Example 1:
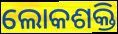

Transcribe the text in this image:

ଲୋକଶକ୍ତି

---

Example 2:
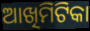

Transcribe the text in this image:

ଆଖିମିଟିକା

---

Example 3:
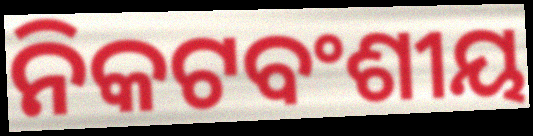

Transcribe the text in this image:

ନିକଟବଂଶୀୟ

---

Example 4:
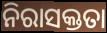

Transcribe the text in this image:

ନିରାସକ୍ତତା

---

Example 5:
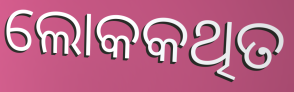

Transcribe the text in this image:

ଲୋକକଥିତ